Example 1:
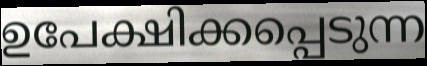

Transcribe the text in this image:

ഉപേക്ഷിക്കപ്പെടുന്ന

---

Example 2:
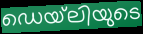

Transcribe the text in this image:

ഡെയ്‌ലിയുടെ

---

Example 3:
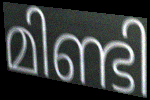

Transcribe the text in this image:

മിണ്ടി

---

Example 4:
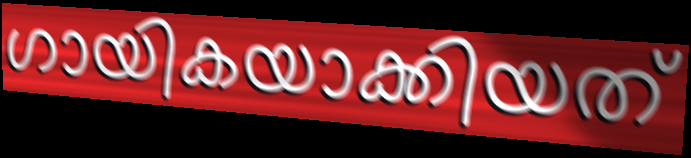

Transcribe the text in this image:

ഗായികയാക്കിയത്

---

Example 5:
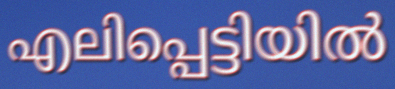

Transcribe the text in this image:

എലിപ്പെട്ടിയിൽ